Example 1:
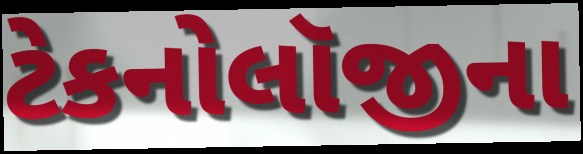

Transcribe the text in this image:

ટેકનોલૉજીના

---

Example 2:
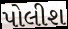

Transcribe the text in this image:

પોલીશ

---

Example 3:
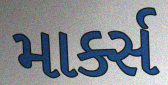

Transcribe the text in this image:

માર્ક્સ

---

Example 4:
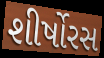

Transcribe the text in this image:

શીર્ષોરસ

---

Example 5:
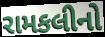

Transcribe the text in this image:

રામકલીનો